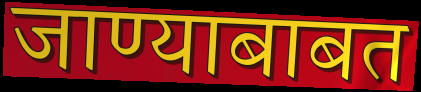
जाण्याबाबत